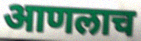
आणलाच